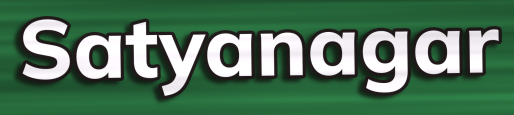
Satyanagar